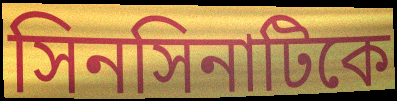
সিনসিনাটিকে